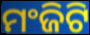
ମଂଜିଟି